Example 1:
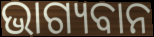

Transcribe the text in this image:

ଭାଗ୍ୟବାନ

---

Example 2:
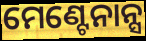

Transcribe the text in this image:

ମେଣ୍ଟେନାନ୍ସ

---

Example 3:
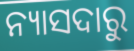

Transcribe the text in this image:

ନ୍ୟାସଦାରୁ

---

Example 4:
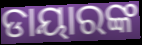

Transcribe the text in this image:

ଡାୟାରଙ୍କ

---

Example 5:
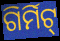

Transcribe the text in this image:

ଗିର୍ମିଟ୍